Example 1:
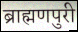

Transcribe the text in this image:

ब्राह्मणपुरी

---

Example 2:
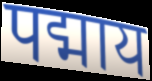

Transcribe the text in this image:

पद्माय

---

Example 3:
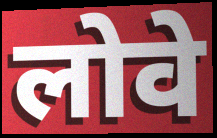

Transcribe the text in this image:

लोवे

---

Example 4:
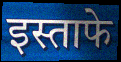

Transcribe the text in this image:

इस्ताफे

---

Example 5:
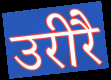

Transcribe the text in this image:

उरीरै